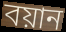
বয়ান